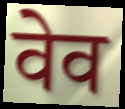
वेव